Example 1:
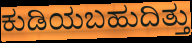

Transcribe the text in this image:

ಕುಡಿಯಬಹುದಿತ್ತು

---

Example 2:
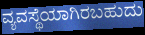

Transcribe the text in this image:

ವ್ಯವಸ್ಥೆಯಾಗಿರಬಹುದು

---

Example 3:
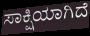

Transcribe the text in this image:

ಸಾಕ್ಷಿಯಾಗಿದೆ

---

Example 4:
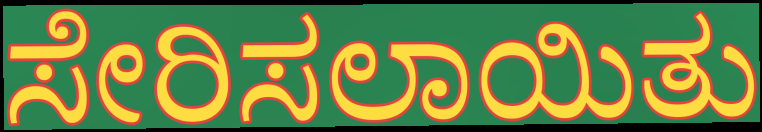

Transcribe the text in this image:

ಸೇರಿಸಲಾಯಿತು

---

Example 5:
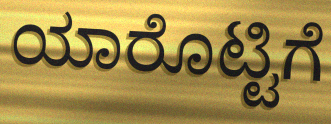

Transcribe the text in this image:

ಯಾರೊಟ್ಟಿಗೆ